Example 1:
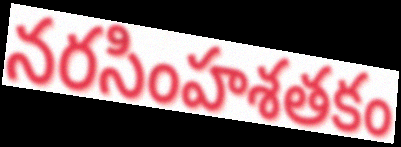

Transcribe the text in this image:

నరసింహశతకం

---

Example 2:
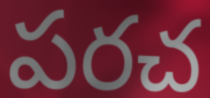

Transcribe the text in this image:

పరచ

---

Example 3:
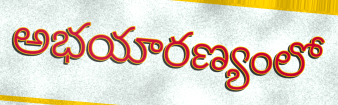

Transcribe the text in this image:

అభయారణ్యంలో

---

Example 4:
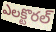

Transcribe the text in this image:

ఎలక్టొరల్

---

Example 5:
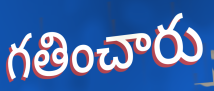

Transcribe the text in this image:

గతించారు